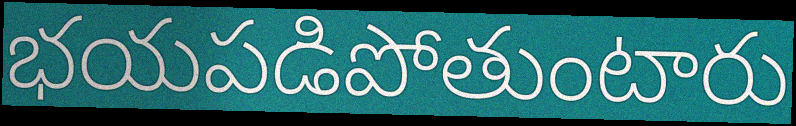
భయపడిపోతుంటారు